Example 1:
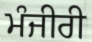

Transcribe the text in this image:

ਮੰਜੀਰੀ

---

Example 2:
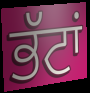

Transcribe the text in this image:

ਭੱਟਾਂ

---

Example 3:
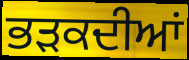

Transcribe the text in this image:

ਭੜਕਦੀਆਂ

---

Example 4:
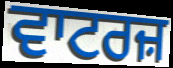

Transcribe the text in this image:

ਵਾਟਰਜ਼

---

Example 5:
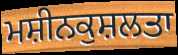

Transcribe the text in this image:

ਮਸ਼ੀਨਕੁਸ਼ਲਤਾ